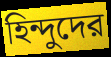
হিন্দুদের